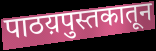
पाठय़पुस्तकातून